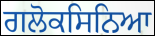
ਗਲੋਕਸਿਨਿਆ